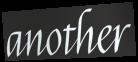
another